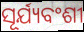
ସୂର୍ଯ୍ୟବଂଶୀ